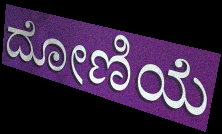
ದೋಣಿಯೆ